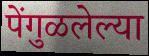
पेंगुळलेल्या